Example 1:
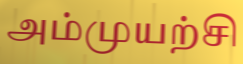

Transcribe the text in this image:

அம்முயற்சி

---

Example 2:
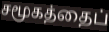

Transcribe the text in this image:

சமூகத்தைப்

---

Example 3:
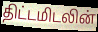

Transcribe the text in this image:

திட்டமிடலின்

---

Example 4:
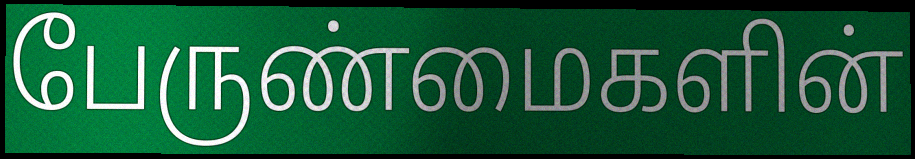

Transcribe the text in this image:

பேருண்மைகளின்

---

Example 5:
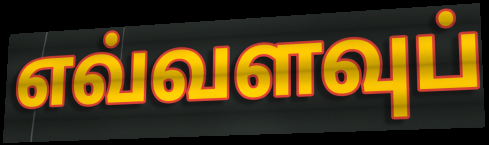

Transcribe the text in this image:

எவ்வளவுப்